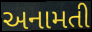
અનામતી